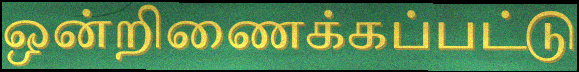
ஒன்றிணைக்கப்பட்டு